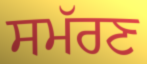
ਸਮੱਰਣ